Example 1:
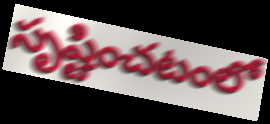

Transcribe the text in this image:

సృష్టించటంలో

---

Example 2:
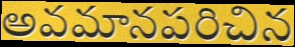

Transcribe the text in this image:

అవమానపరిచిన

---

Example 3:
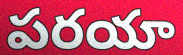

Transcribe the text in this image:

పరయా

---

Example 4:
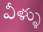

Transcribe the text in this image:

వీళ్ళు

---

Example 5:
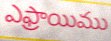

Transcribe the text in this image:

ఎఫ్రాయిము